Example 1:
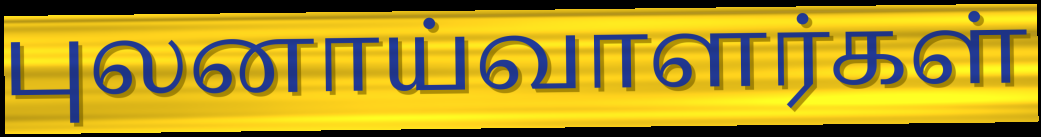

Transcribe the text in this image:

புலனாய்வாளர்கள்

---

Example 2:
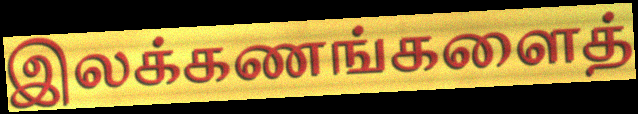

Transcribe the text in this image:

இலக்கணங்களைத்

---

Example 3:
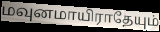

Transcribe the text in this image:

மவுனமாயிராதேயும்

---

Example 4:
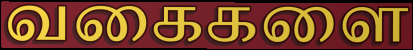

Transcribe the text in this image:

வகைகளை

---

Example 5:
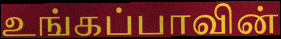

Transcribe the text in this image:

உங்கப்பாவின்